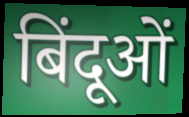
बिंदूओं